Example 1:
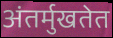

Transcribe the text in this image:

अंतर्मुखतेत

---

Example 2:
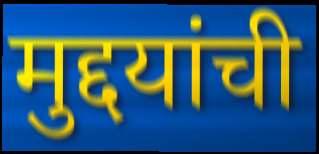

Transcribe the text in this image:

मुद्दयांची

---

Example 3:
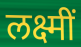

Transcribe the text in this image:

लक्ष्मीं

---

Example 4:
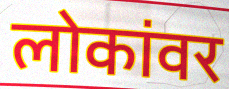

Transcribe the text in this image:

लोकांवर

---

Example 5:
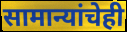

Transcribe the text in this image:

सामान्यांचेही